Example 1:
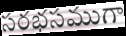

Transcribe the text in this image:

సరభసముగా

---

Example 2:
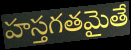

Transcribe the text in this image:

హస్తగతమైతే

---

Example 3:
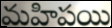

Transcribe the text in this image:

మహిపయి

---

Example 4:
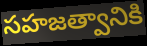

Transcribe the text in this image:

సహజత్వానికి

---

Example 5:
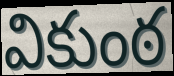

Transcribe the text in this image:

వికుంఠ